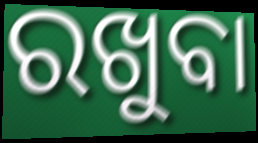
ରଖୁବା